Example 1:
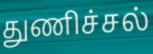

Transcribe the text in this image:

துணிச்சல்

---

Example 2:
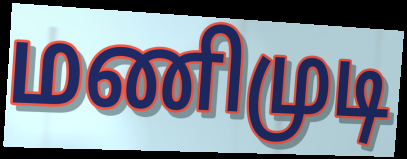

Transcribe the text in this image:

மணிமுடி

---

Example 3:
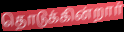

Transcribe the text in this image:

தொடுக்கின்றார்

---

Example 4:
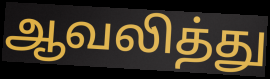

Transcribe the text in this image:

ஆவலித்து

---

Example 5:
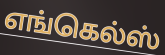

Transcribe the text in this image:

எங்கெல்ஸ்